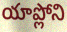
యాప్లోని